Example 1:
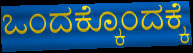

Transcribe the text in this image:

ಒಂದಕ್ಕೊಂದಕ್ಕೆ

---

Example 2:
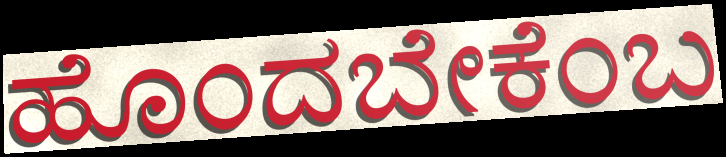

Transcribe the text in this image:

ಹೊಂದಬೇಕೆಂಬ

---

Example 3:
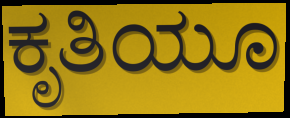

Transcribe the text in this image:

ಕೃತಿಯೂ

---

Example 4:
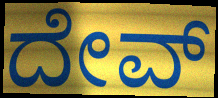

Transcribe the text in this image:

ದೇವ್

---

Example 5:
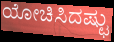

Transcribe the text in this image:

ಯೋಚಿಸಿದಷ್ಟು